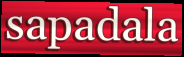
sapadala